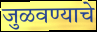
जुळवण्याचे